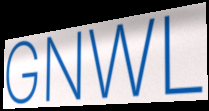
GNWL